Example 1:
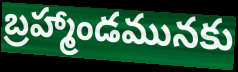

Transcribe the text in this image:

బ్రహ్మాండమునకు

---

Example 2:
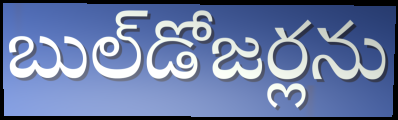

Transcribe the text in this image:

బుల్‌డోజర్లను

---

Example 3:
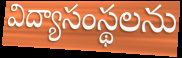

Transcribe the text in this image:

విద్యాసంస్థలను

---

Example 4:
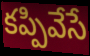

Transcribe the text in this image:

కప్పివేసే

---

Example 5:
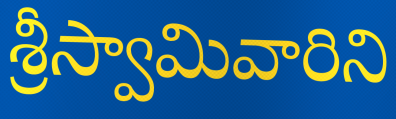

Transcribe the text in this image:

శ్రీస్వామివారిని